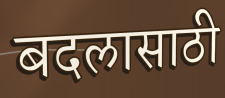
बदलासाठी